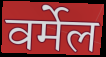
वर्मेल